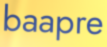
baapre